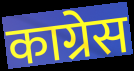
काग्रेस